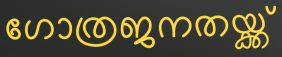
ഗോത്രജനതയ്ക്ക്